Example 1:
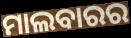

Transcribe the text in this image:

ମାଲବାରର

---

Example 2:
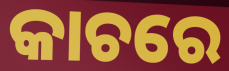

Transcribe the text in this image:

କାଚରେ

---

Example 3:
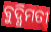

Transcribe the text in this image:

ବୁଦ୍ଧିମତୀ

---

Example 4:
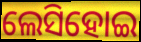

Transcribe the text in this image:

ଲେସିହୋଇ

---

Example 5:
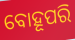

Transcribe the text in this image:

ବୋହୂପରି